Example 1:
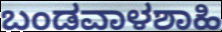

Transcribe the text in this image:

ಬಂಡವಾಳಶಾಹಿ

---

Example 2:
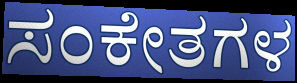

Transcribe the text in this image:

ಸಂಕೇತಗಳ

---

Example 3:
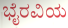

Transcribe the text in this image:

ಭೈರವಿಯ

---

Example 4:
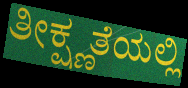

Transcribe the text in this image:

ತೀಕ್ಷ್ಣತೆಯಲ್ಲಿ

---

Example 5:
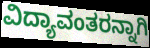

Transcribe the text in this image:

ವಿದ್ಯಾವಂತರನ್ನಾಗಿ